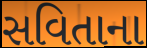
સવિતાના